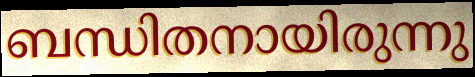
ബന്ധിതനായിരുന്നു